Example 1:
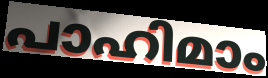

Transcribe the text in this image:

പാഹിമാം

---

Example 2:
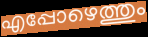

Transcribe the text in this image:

എപ്പോഴെത്തും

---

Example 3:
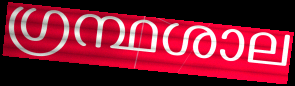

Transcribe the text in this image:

ഗ്രന്ഥശാല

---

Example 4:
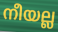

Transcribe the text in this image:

നീയല്ല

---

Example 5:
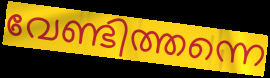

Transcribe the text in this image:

വേണ്ടിത്തന്നെ